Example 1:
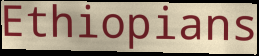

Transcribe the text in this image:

Ethiopians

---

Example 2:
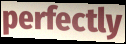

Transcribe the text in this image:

perfectly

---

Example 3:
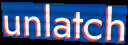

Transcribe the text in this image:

unlatch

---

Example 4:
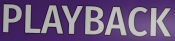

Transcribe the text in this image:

PLAYBACK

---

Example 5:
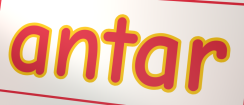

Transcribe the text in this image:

antar